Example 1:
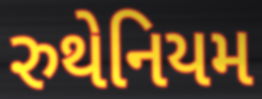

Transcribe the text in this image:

રુથેનિયમ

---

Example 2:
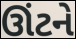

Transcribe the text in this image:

ઊંટને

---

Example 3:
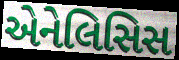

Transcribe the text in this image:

એનેલિસિસ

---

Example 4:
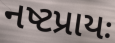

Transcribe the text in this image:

નષ્ટપ્રાયઃ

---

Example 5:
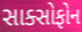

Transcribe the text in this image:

સાક્સોફોન